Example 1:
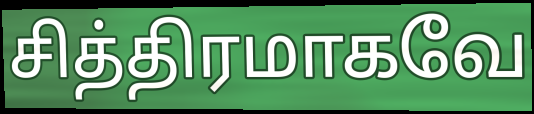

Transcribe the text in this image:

சித்திரமாகவே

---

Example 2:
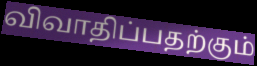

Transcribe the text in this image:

விவாதிப்பதற்கும்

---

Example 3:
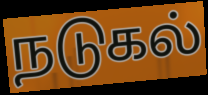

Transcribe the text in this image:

நடுகல்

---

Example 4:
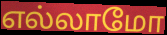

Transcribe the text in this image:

எல்லாமோ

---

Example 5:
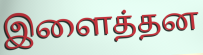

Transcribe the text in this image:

இளைத்தன